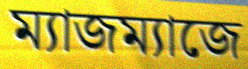
ম্যাজম্যাজে